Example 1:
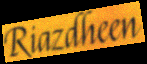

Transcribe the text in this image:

Riazdheen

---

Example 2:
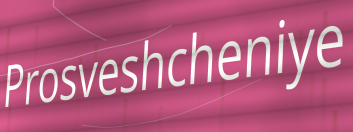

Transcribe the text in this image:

Prosveshcheniye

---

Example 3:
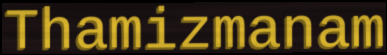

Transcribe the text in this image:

Thamizmanam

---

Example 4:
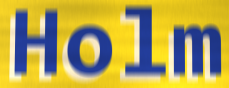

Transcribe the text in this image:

Holm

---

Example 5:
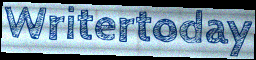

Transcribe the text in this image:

Writertoday